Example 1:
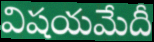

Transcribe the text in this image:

విషయమేదీ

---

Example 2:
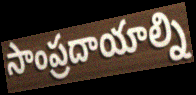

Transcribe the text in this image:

సాంప్రదాయాల్ని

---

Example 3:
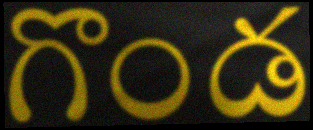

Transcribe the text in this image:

గొండ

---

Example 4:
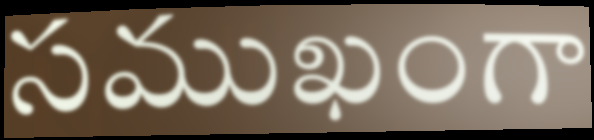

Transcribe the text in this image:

సముఖంగా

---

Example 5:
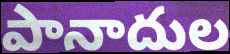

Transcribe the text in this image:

పానాదుల